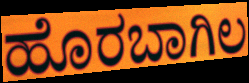
ಹೊರಬಾಗಿಲ